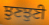
ਝੁਣਝੁਣੀ